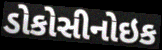
ડોકોસીનોઇક